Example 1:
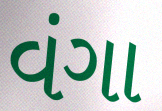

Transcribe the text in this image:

વંગા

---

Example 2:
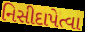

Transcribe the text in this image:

નિસીદાપેત્વા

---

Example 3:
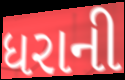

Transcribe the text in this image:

ધરાની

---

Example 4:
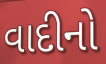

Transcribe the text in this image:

વાદીનો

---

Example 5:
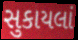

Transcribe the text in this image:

સુકાયલાં